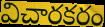
విచారకరం